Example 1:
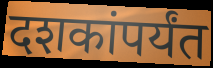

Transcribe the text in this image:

दशकांपर्यंत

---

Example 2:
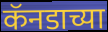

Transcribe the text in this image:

कॅनडाच्या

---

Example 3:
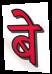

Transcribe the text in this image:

बे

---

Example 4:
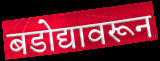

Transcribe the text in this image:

बडोद्यावरून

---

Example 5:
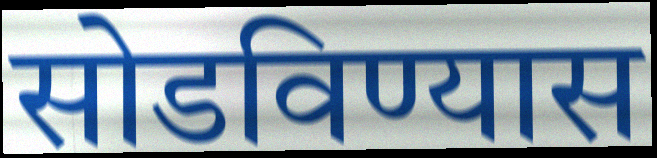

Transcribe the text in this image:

सोडविण्यास